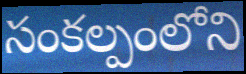
సంకల్పంలోని